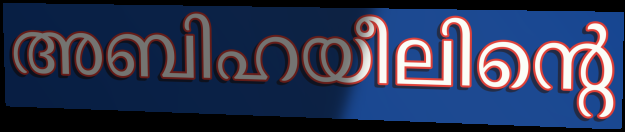
അബിഹയീലിന്റെ